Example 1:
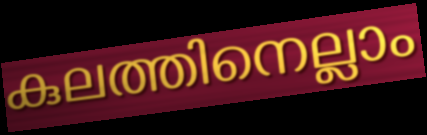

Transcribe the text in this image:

കുലത്തിനെല്ലാം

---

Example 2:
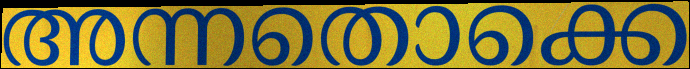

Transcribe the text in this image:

അന്നതൊക്കെ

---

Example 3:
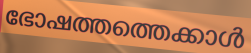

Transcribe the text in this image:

ഭോഷത്തത്തെക്കാൾ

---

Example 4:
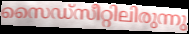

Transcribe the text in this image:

സൈഡ്സീറ്റിലിരുന്നു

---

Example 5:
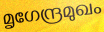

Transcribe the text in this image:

മൃഗേന്ദ്രമുഖം